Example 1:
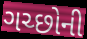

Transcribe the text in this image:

ગચ્છોની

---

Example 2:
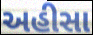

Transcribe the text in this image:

અહીસા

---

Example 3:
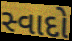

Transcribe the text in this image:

સ્વાદો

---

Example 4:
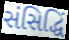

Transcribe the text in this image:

સંસિદ્ધિં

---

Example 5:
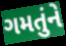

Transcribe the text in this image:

ગમતુંને